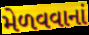
મેળવવાનાં